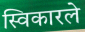
स्विकारले